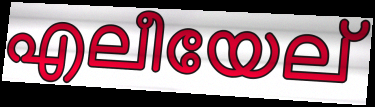
എലീയേല്